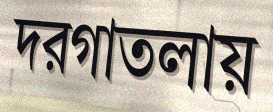
দরগাতলায়